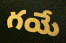
గయే